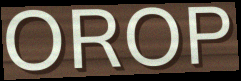
OROP